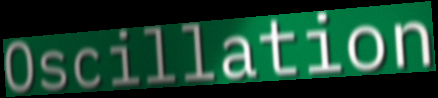
Oscillation